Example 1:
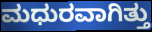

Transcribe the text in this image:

ಮಧುರವಾಗಿತ್ತು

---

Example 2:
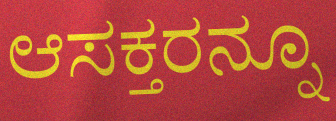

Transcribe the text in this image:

ಆಸಕ್ತರನ್ನೂ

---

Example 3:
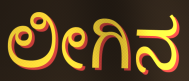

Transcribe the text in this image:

ಲೀಗಿನ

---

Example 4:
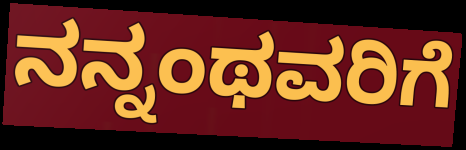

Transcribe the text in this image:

ನನ್ನಂಥವರಿಗೆ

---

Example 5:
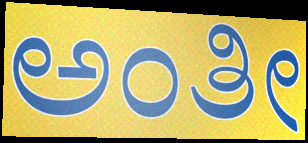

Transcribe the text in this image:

ಅಂತೀ